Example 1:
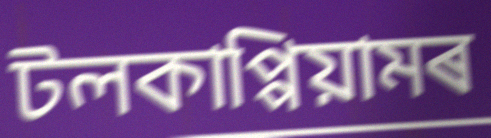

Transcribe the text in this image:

টলকাপ্পিয়ামৰ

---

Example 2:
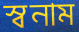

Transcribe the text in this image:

স্বনাম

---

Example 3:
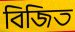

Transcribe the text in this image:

বিজিত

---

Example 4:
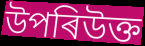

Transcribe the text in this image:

উপৰিউক্ত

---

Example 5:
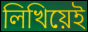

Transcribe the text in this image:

লিখিয়েই